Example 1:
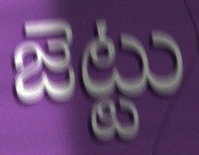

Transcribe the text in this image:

జెట్టు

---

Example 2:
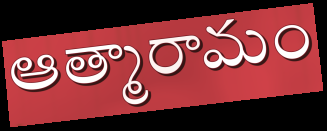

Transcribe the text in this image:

ఆత్మారామం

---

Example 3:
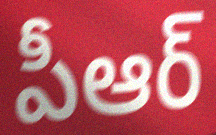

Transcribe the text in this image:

పీఆర్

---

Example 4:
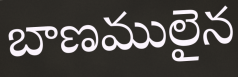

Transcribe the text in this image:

బాణములైన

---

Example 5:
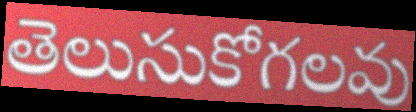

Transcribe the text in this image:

తెలుసుకోగలవు